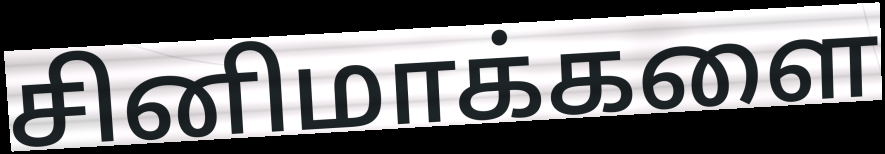
சினிமாக்களை